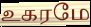
உகரமே